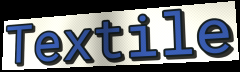
Textile